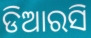
ଡିଆରସି